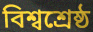
বিশ্বশ্ৰেষ্ঠ